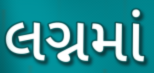
લગ્નમાં